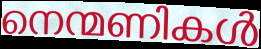
നെന്മണികൾ